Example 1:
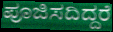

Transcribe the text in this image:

ಪೂಜಿಸದಿದ್ದರೆ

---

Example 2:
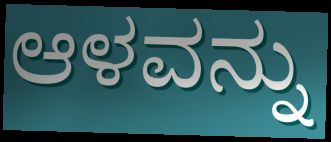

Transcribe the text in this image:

ಆಳವನ್ನು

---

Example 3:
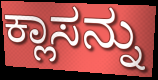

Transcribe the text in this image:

ಕ್ಲಾಸನ್ನು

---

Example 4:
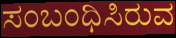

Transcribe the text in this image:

ಸಂಬಂಧಿಸಿರುವ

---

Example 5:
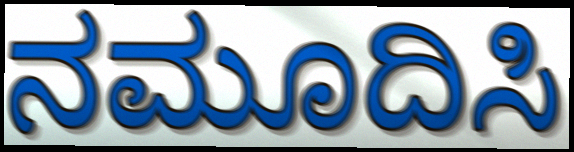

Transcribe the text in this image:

ನಮೂದಿಸಿ